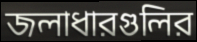
জলাধারগুলির